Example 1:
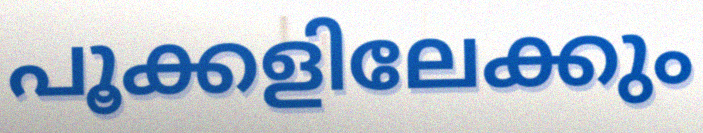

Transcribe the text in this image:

പൂക്കളിലേക്കും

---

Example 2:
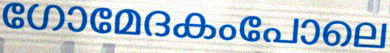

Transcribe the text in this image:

ഗോമേദകംപോലെ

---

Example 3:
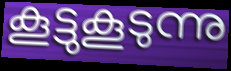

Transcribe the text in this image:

കൂട്ടുകൂടുന്നു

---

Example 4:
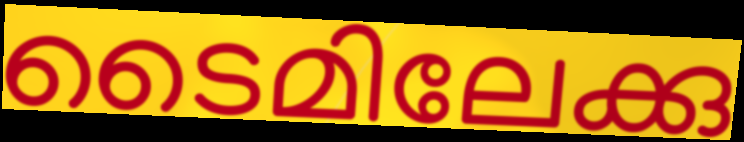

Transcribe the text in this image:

ടൈമിലേക്കു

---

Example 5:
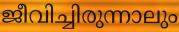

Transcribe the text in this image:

ജീവിച്ചിരുന്നാലും